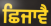
ਛਿਜਾਵੈ